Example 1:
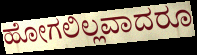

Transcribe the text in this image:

ಹೋಗಲಿಲ್ಲವಾದರೂ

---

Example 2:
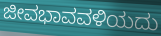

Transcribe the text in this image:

ಜೀವಭಾವವಳಿಯದು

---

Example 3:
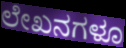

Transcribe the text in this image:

ಲೇಖನಗಳೂ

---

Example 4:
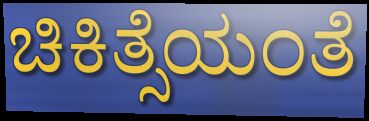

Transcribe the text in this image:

ಚಿಕಿತ್ಸೆಯಂತೆ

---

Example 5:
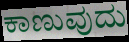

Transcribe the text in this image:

ಕಾಣುವುದು